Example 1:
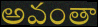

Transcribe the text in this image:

అవంతా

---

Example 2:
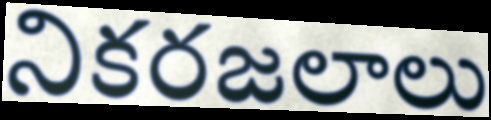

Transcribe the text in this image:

నికరజలాలు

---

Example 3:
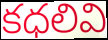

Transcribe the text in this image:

కధలివి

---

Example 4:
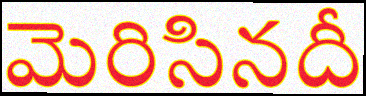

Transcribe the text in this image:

మెరిసినదీ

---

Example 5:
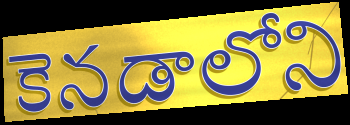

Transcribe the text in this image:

కెనడాలోని